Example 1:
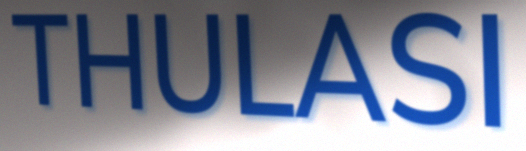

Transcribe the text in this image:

THULASI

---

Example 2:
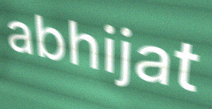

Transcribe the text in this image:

abhijat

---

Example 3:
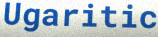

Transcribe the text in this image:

Ugaritic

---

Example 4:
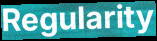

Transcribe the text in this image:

Regularity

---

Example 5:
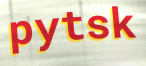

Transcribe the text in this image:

pytsk